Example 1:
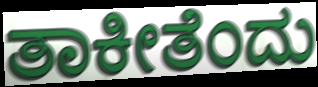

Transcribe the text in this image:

ತಾಕೀತೆಂದು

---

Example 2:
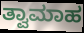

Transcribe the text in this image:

ತ್ವಾಮಾಹ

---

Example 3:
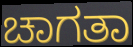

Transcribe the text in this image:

ಚಾಗತಾ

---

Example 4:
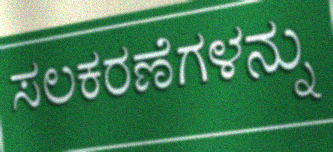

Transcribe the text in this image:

ಸಲಕರಣೆಗಳನ್ನು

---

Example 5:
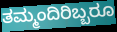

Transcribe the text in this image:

ತಮ್ಮಂದಿರಿಬ್ಬರೂ